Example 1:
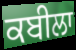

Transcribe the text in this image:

ਕਬੀਲਾ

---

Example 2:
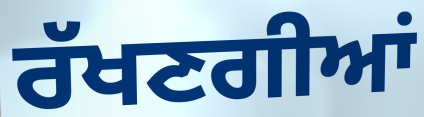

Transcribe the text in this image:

ਰੱਖਣਗੀਆਂ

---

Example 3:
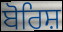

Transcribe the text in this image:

ਬੋਰਿਸ਼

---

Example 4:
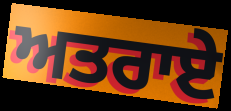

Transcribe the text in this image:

ਅਤਰਾਏ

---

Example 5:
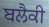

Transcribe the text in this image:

ਬਲੈਕੀ